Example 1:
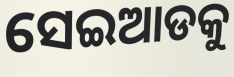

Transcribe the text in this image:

ସେଇଆଡକୁ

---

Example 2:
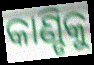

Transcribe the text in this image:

କାଣ୍ଡିକୁ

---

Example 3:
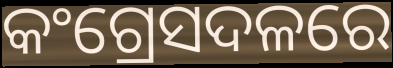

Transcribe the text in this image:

କଂଗ୍ରେସଦଳରେ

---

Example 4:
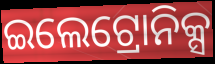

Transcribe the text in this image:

ଇଲେଟ୍ରୋନିକ୍ସ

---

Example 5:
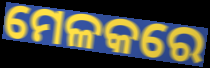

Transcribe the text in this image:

ମେଳକରେ